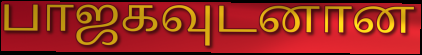
பாஜகவுடனான